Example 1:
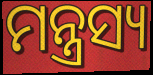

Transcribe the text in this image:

ମନ୍ତ୍ରସ୍ୟ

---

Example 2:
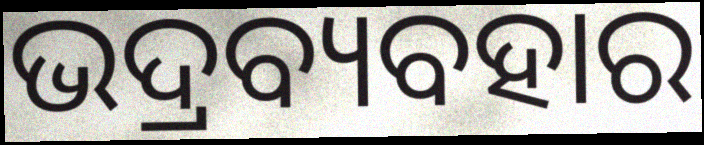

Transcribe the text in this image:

ଭଦ୍ରବ୍ୟବହାର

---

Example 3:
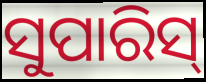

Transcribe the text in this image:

ସୁପାରିସ୍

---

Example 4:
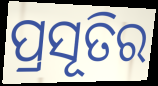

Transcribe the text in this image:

ପ୍ରସୂତିର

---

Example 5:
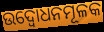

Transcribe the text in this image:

ଉଦ୍ବୋଧନମୂଳକ